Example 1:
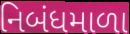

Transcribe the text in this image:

નિબંધમાળા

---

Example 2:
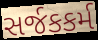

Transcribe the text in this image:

સર્જકકર્મ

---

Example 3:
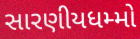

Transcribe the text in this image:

સારણીયધમ્મો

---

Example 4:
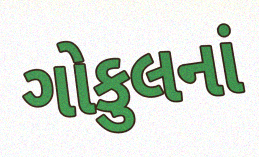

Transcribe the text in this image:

ગોકુલનાં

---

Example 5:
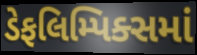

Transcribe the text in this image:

ડેફલિમ્પિક્સમાં